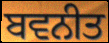
ਬਵਨੀਤ